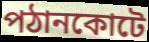
পঠানকোটে